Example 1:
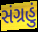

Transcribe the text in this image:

સંગ્રહું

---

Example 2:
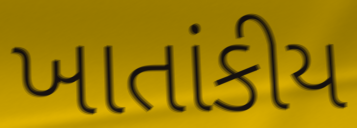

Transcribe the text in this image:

ખાતાંકીય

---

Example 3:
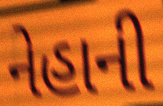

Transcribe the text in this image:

નેહાની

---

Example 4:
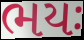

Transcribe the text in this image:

ભયઃ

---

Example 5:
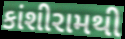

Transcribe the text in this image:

કાંશીરામથી